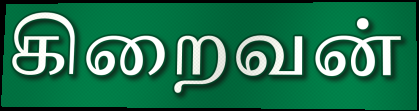
கிறைவன்